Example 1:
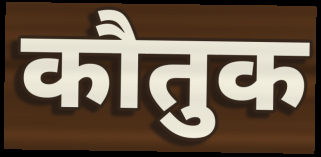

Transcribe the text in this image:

कौतुक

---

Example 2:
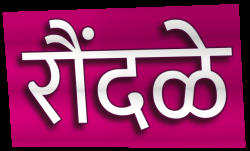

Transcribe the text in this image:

रौंदळे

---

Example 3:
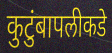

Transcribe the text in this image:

कुटुंबापलीकडे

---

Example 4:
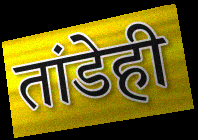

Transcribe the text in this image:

तांडेही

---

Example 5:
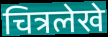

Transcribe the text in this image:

चित्रलेखे